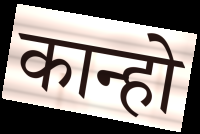
कान्हो